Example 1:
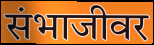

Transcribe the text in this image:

संभाजीवर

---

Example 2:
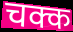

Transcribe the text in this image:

चक्क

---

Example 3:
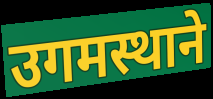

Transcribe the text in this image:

उगमस्थाने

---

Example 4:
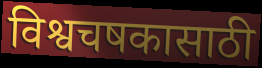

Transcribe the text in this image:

विश्वचषकासाठी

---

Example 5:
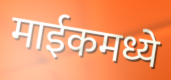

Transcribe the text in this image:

माईकमध्ये